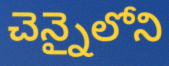
చెన్నైలోని